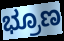
ಭ್ರೂಣ